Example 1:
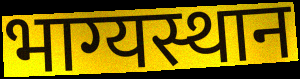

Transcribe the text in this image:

भाग्यस्थान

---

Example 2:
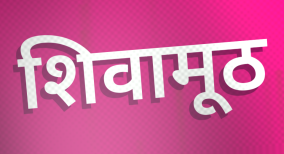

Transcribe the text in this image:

शिवामूठ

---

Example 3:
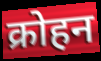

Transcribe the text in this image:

क्रोहन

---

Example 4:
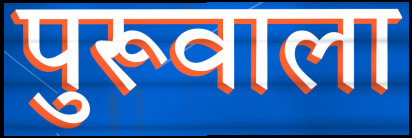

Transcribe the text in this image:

पुरूवाला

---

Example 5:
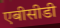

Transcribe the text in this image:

एबीसीडी